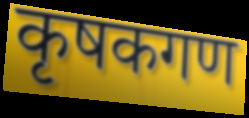
कृषकगण